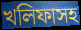
খলিফাসহ